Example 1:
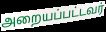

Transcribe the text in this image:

அறையப்பட்டவர்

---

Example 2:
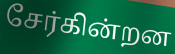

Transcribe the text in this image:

சேர்கின்றன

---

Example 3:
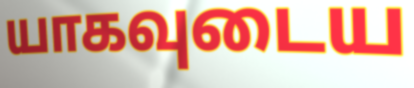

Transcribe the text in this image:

யாகவுடைய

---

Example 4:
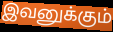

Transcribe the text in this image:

இவனுக்கும்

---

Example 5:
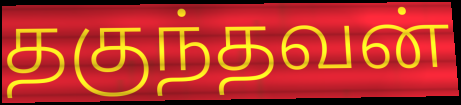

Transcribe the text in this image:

தகுந்தவன்